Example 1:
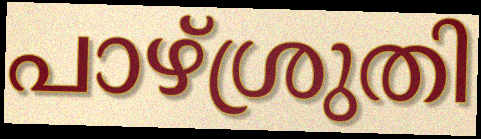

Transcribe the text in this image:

പാഴ്ശ്രുതി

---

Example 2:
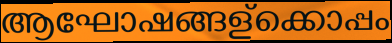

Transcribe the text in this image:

ആഘോഷങ്ങള്ക്കൊപ്പം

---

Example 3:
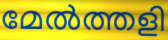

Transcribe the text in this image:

മേൽത്തളി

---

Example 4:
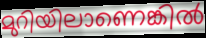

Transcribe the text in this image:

മുറിയിലാണെങ്കിൽ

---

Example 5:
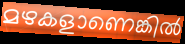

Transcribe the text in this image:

മഴകളാണെങ്കിൽ